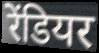
रेंडियर